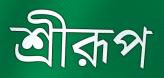
শ্রীরূপ